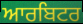
ਆਰਬਿਟਰ